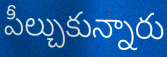
పీల్చుకున్నారు